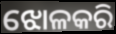
ଝୋଳକରି